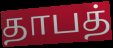
தாபத்